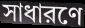
সাধারণে